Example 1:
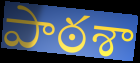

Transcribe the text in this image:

పాఠశా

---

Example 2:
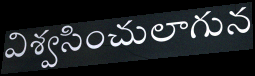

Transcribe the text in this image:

విశ్వసించులాగున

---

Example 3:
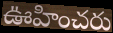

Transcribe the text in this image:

ఊహించరు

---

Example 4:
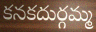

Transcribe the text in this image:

కనకదుర్గమ్మ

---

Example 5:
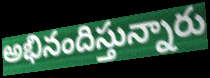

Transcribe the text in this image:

అభినందిస్తున్నారు